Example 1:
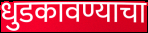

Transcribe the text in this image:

धुडकावण्याचा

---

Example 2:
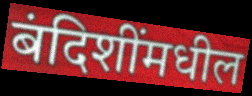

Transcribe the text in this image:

बंदिशींमधील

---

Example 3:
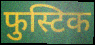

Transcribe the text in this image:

फुस्टिक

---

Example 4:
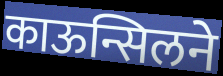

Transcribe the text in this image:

काऊन्सिलने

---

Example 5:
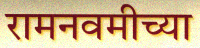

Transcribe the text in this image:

रामनवमीच्या